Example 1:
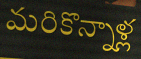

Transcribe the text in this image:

మరికొన్నాళ్ల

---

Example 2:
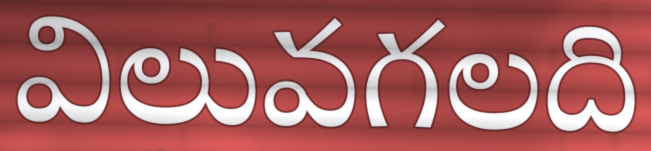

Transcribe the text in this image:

విలువగలది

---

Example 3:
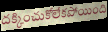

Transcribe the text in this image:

దక్కించుకోలేకపోయింది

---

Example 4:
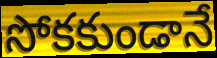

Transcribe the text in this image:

సోకకుండానే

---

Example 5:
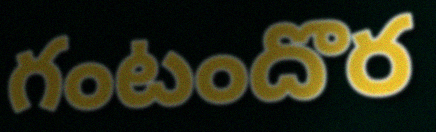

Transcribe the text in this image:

గంటందొర